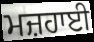
ਮਜ਼ਹਾਈ